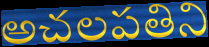
అచలపతిని